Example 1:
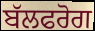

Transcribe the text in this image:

ਬੱਲਫਰੋਗ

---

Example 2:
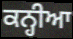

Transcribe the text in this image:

ਕਨ੍ਹੀਆ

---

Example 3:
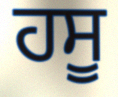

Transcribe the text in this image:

ਹਸੂ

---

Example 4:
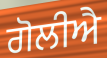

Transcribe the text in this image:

ਗੋਲੀਐ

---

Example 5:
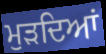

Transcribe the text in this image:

ਮੁੜਦਿਆਂ